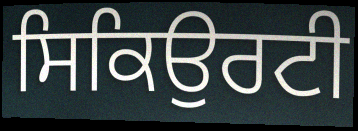
ਸਿਕਿਉਰਟੀ